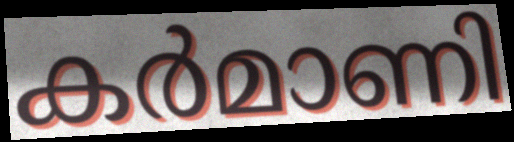
കർമാണി